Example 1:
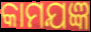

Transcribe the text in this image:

କାମଯଜ୍ଞ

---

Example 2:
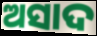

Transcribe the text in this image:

ଅସାଦ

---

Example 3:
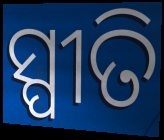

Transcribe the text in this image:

ସ୍ପୀତି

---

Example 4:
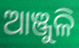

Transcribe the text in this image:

ଆଞ୍ଜୁଳି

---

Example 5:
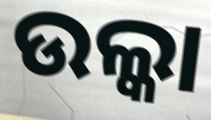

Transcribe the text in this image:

ଉଲ୍କା